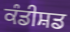
ਕੰਡੀਸ਼ਡ